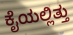
ಕೈಯಲ್ಲಿತ್ತು